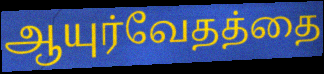
ஆயுர்வேதத்தை